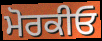
ਮੋਰਕੀਓ